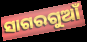
ସାଗରଗୁଆଁ